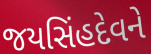
જયસિંહદેવને